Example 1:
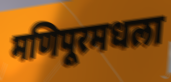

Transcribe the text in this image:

मणिपूरमधला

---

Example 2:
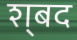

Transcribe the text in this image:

श्बद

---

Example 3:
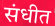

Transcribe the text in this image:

संधीत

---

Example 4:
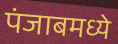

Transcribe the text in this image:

पंजाबमध्ये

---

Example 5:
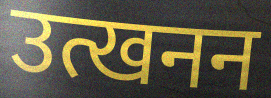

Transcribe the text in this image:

उत्खनन